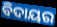
ବିଦାୟର